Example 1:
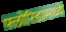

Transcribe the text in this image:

फ्लोरिडामध्ये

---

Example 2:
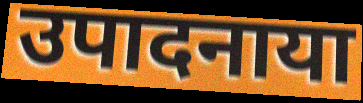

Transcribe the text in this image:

उपादनाया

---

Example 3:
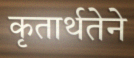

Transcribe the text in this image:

कृतार्थतेने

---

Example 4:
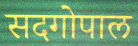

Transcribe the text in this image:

सदगोपाल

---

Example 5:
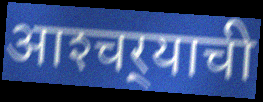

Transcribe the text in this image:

आश्चर्याची